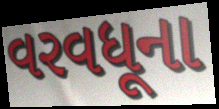
વરવધૂના